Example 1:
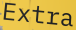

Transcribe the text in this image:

Extra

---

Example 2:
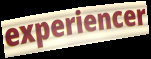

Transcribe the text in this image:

experiencer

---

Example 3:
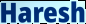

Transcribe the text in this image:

Haresh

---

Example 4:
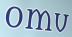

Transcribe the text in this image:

omu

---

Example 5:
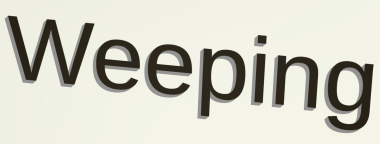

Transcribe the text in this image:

Weeping